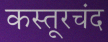
कस्तूरचंद